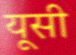
यूसी